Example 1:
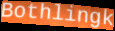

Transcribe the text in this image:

Bothlingk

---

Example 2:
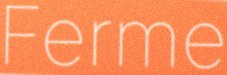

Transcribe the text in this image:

Ferme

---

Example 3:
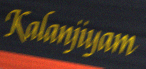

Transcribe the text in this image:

Kalanjiyam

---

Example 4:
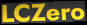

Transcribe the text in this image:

LCZero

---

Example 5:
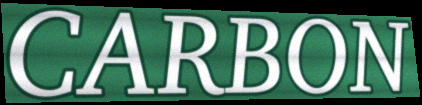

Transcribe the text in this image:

CARBON